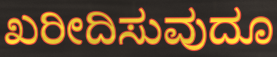
ಖರೀದಿಸುವುದೂ